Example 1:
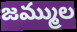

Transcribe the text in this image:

జమ్ముల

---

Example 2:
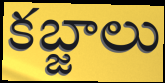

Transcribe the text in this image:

కబ్జాలు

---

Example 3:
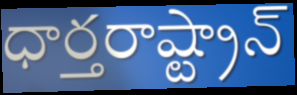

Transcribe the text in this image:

ధార్తరాష్ట్రాన్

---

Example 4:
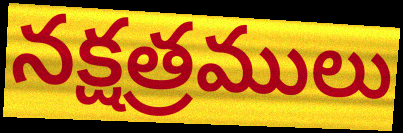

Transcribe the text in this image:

నక్షత్రములు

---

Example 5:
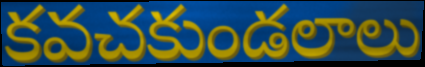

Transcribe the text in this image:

కవచకుండలాలు